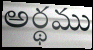
అర్థము